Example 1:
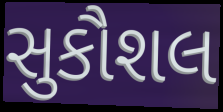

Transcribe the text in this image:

સુકૌશલ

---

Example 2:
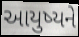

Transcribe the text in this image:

આયુષ્યને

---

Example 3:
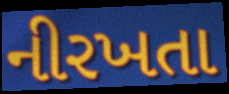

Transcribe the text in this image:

નીરખતા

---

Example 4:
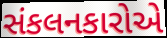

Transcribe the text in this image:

સંકલનકારોએ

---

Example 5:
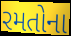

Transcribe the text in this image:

રમતોના